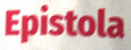
Epistola